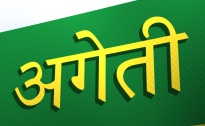
अगेती